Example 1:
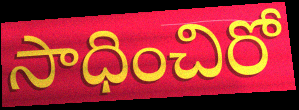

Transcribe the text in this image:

సాధించిరో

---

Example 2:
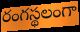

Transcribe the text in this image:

రంగస్థలంగా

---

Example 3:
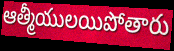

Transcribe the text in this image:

ఆత్మీయులయిపోతారు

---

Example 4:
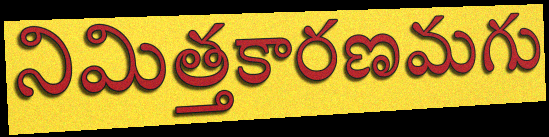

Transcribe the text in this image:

నిమిత్తకారణమగు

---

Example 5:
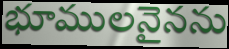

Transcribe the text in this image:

భూములనైనను